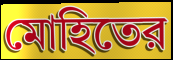
মোহিতের